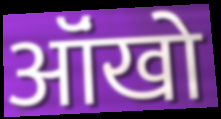
ऑंखो